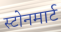
स्टोनमार्ट